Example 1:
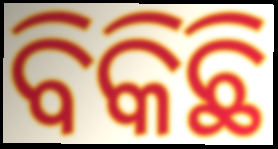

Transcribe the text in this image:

ବିକିଛି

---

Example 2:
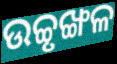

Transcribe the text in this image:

ଉଚ୍ଚୃଙ୍ଖଳ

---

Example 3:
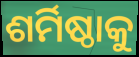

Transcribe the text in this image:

ଶର୍ମିଷ୍ଠାକୁ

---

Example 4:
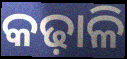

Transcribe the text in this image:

କଢ଼ାଳି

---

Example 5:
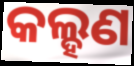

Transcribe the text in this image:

କଲ୍ହଣ